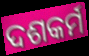
ଦଶକର୍ମ